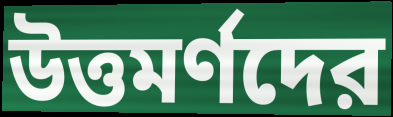
উত্তমর্ণদের